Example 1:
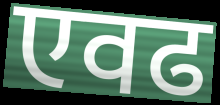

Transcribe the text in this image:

एवढ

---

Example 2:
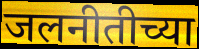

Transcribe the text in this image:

जलनीतीच्या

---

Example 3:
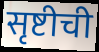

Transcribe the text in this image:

सृष्टीची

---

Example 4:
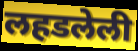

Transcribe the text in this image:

लहडलेली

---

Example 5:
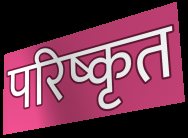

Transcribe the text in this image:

परिष्कृत